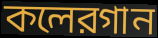
কলেরগান